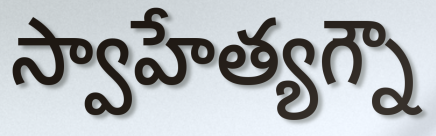
స్వాహేత్యగ్నౌ